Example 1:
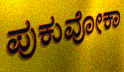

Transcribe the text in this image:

ಪುಕುವೋಕಾ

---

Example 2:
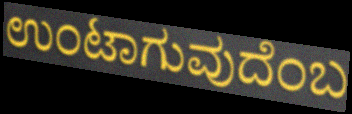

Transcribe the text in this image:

ಉಂಟಾಗುವುದೆಂಬ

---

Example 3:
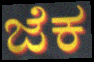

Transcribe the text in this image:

ಜೆಕ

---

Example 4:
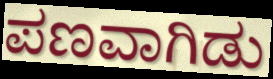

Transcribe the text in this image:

ಪಣವಾಗಿಡು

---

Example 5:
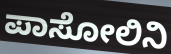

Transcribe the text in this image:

ಪಾಸೋಲಿನಿ